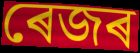
ৰেজৰ